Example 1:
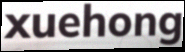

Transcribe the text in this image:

xuehong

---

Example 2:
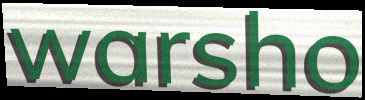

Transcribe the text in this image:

warsho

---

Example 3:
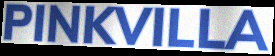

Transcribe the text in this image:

PINKVILLA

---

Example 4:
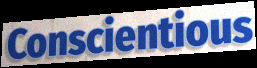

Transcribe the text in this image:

Conscientious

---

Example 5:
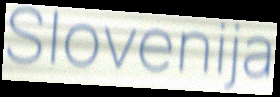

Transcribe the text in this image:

Slovenija